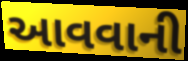
આવવાની